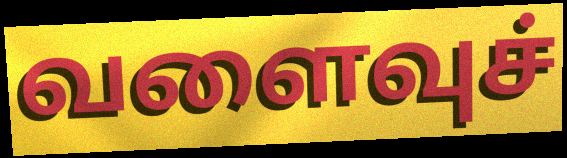
வளைவுச்